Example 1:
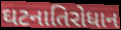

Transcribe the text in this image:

ઘટનાતિરોધાન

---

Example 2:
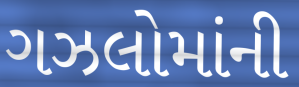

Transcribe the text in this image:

ગઝલોમાંની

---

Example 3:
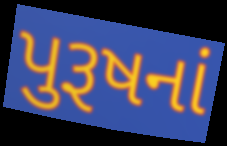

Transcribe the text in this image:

પુરૂષનાં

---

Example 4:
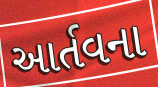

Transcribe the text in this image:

આર્તવના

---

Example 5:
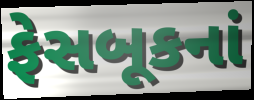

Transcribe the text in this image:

ફેસબૂકનાં